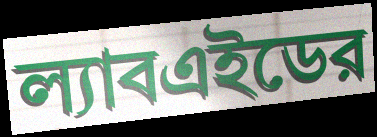
ল্যাবএইডের